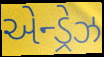
એન્ડ્રેઝ